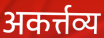
अकर्त्तव्य